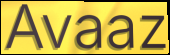
Avaaz